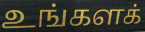
உங்களக்